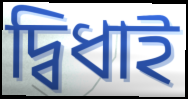
দ্বিধাই